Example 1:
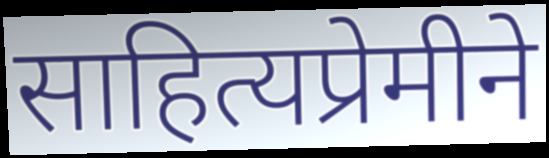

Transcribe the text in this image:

साहित्यप्रेमीने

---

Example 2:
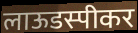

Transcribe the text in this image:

लाऊडस्पीकर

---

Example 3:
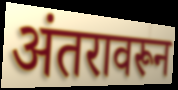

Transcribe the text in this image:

अंतरावरून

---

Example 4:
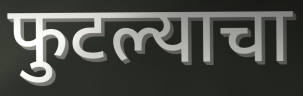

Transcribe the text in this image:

फुटल्याचा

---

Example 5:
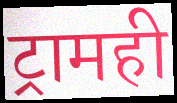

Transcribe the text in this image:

ट्रामही